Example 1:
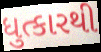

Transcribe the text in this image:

ધુત્કારથી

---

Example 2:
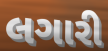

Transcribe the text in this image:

લગારી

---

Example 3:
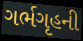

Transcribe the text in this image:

ગર્ભગૃહની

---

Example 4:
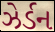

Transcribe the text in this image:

ઝેર્ડન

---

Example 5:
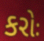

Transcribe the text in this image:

કરોઃ